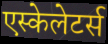
एस्केलेटर्स